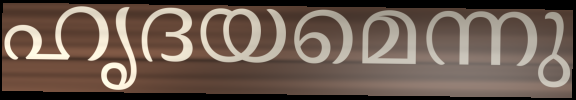
ഹൃദയമെന്നു